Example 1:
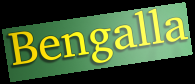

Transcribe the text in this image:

Bengalla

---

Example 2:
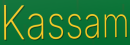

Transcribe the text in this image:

Kassam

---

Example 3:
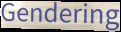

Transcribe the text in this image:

Gendering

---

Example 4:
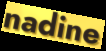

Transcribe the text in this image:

nadine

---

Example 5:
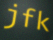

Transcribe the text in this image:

jfk